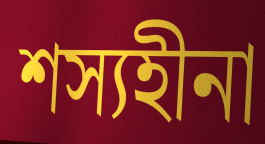
শস্যহীনা